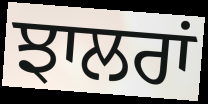
ਝਾਲਰਾਂ